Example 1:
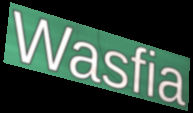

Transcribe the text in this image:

Wasfia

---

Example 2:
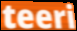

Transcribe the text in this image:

teeri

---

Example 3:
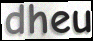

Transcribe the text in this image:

dheu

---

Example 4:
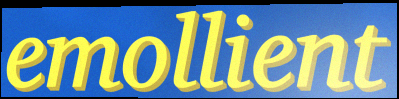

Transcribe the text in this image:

emollient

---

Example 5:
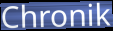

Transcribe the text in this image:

Chronik